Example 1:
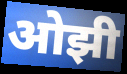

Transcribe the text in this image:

ओझी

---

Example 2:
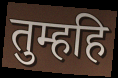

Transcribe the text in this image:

तुम्हहि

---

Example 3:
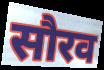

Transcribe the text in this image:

सौरव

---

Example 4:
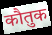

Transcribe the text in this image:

कौतुक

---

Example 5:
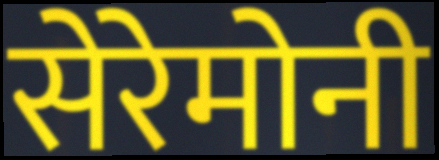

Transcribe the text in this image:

सेरेमोनी